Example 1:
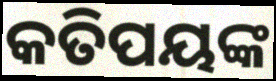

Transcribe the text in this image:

କତିପୟଙ୍କ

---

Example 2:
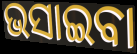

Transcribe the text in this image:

ଭସାଇବା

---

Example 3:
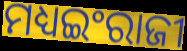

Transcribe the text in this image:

ମଧ୍ୟଇଂରାଜୀ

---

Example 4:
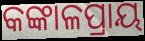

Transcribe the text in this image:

କଙ୍କାଳପ୍ରାୟ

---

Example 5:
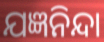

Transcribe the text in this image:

ଯଜ୍ଞନିନ୍ଦା